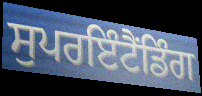
ਸੁਪਰਇੰਟੈਂਡਿੰਗ